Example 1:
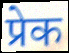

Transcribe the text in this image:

प्रेक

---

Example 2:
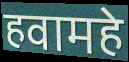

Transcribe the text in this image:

हवामहे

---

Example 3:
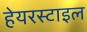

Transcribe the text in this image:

हेयरस्टाइल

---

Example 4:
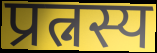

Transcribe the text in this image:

प्रत्नस्य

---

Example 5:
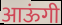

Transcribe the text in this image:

आऊंगी